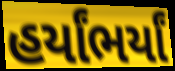
હર્યાંભર્યાં